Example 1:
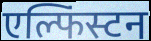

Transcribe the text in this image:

एल्फिंस्टन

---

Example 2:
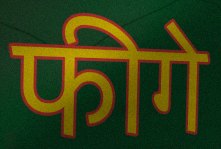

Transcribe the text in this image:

फीगे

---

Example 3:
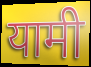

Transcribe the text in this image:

यामी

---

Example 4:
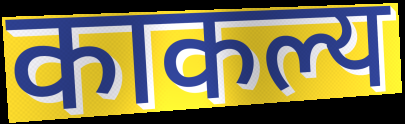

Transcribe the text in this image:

काकल्य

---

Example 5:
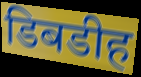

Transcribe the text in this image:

डिबडीह